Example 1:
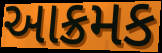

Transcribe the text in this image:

આક્રમક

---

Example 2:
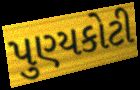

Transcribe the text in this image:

પુણ્યકોટી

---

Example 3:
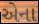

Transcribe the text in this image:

એના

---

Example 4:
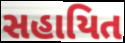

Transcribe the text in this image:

સહાયિત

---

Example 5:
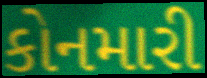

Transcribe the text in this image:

કોનમારી